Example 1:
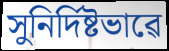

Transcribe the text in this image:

সুনিৰ্দিষ্টভাৱে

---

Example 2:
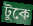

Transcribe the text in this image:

টুকে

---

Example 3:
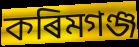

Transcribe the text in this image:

কৰিমগঞ্জ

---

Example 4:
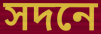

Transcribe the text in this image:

সদনে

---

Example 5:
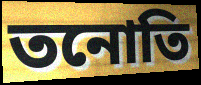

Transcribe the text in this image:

তনোতি